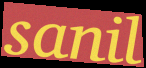
sanil